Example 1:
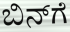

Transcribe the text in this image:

ಬಿನ್‌ಗೆ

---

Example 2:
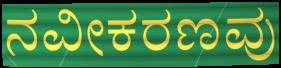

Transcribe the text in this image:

ನವೀಕರಣವು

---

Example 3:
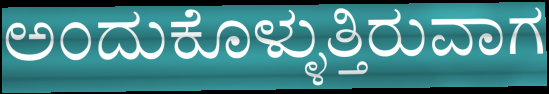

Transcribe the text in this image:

ಅಂದುಕೊಳ್ಳುತ್ತಿರುವಾಗ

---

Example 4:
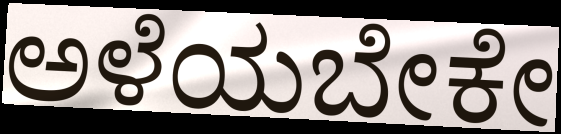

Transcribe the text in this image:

ಅಳೆಯಬೇಕೇ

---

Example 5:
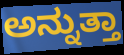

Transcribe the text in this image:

ಅನ್ನುತ್ತಾ